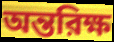
অন্তরিক্ষ